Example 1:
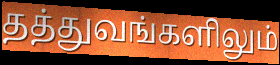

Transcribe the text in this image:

தத்துவங்களிலும்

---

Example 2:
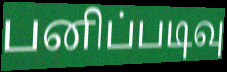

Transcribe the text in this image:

பனிப்படிவு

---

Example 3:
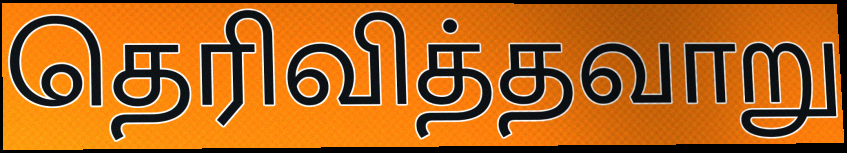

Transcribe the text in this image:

தெரிவித்தவாறு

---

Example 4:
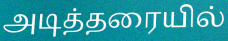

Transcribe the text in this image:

அடித்தரையில்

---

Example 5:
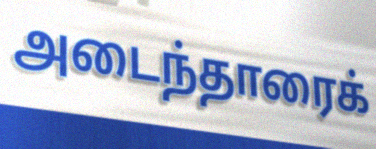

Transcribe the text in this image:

அடைந்தாரைக்